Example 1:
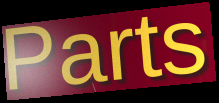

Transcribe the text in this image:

Parts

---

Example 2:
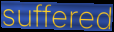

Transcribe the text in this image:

suffered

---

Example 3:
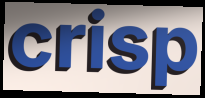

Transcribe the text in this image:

crisp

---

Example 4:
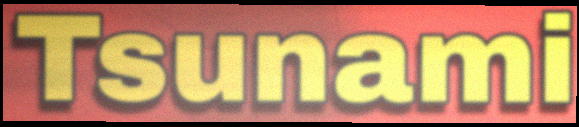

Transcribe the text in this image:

Tsunami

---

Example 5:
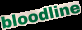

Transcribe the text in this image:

bloodline